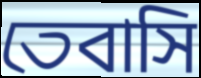
তেবাসি